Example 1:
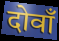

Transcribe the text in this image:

दोवाँ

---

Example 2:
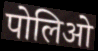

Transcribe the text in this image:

पोलिओ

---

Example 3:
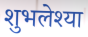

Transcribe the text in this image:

शुभलेश्या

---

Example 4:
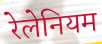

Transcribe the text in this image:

रेलेनियम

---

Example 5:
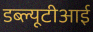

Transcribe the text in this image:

डब्ल्यूटीआई